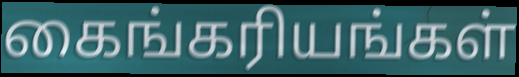
கைங்கரியங்கள்